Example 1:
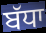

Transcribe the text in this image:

ਬੱਧਾ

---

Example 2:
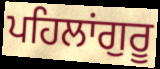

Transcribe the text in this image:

ਪਹਿਲਾਂਗੁਰੂ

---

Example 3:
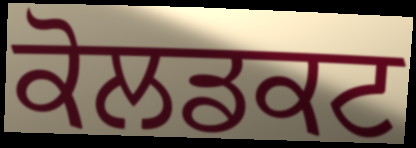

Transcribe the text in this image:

ਕੋਲਡਕਟ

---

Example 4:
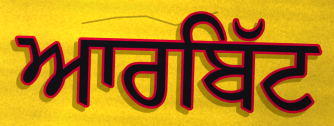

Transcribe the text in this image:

ਆਰਬਿੱਟ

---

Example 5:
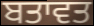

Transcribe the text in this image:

ਬਤਾਵਤ